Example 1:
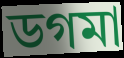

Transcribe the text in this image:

ডগমা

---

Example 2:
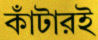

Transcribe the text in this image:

কাঁটারই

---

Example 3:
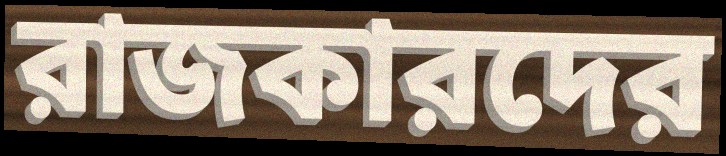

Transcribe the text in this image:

রাজকারদের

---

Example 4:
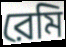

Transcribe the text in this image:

রেমি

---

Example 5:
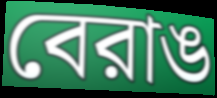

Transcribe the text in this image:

বেরাঙ